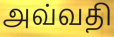
அவ்வதி